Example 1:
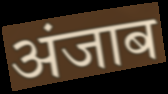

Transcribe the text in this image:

अंजाब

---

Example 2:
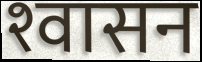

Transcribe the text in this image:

श्वासन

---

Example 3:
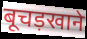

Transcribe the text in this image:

बूचड़खाने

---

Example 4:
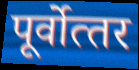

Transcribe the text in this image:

पूर्वोत्‍तर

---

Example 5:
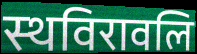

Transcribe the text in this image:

स्थविरावलि